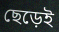
ছেড়েই